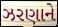
ઝરણાને